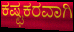
ಕಷ್ಟಕರವಾಗಿ